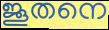
ജൂതനെ